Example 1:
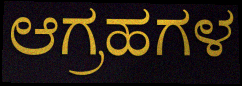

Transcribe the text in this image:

ಆಗ್ರಹಗಳ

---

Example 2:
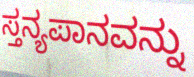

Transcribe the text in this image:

ಸ್ತನ್ಯಪಾನವನ್ನು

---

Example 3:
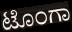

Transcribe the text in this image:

ಟೊಂಗಾ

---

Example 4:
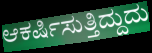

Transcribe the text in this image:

ಆಕರ್ಷಿಸುತ್ತಿದ್ದುದು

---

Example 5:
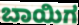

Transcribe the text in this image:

ಬಾಯಿಗ